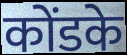
कोंडके